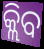
କ୍ଲିବ